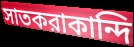
সাতকরাকান্দি